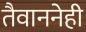
तैवाननेही